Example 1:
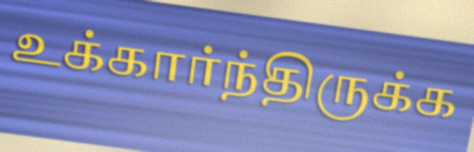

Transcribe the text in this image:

உக்கார்ந்திருக்க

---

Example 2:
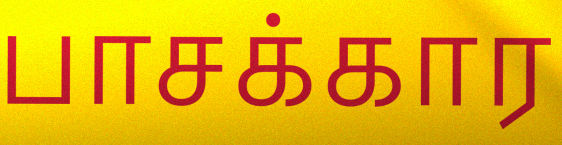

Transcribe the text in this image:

பாசக்கார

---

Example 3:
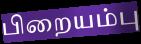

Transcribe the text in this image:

பிறையம்பு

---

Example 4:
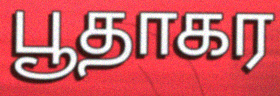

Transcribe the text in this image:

பூதாகர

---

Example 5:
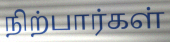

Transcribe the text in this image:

நிற்பார்கள்